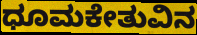
ಧೂಮಕೇತುವಿನ